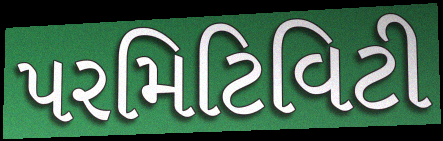
પરમિટિવિટી